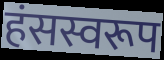
हंसस्वरूप